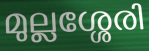
മുല്ലശ്ശേരി